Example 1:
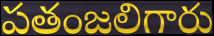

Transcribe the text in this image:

పతంజలిగారు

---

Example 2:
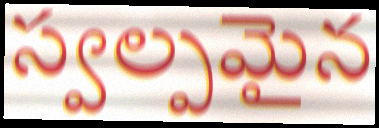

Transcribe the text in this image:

స్వల్పమైన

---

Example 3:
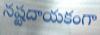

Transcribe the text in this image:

నష్టదాయకంగా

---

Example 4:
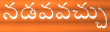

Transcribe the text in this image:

నడవవచ్చు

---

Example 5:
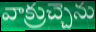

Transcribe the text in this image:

వాక్రుచ్చెను